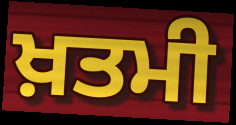
ਖ਼ਤਮੀ